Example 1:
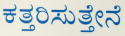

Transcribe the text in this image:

ಕತ್ತರಿಸುತ್ತೇನೆ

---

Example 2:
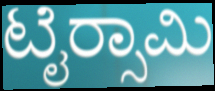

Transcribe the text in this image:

ಟೈರ‍್ಸಾಮಿ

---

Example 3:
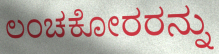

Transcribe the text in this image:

ಲಂಚಕೋರರನ್ನು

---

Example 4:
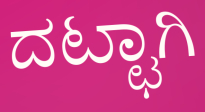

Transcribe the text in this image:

ದಟ್ಟಾಗಿ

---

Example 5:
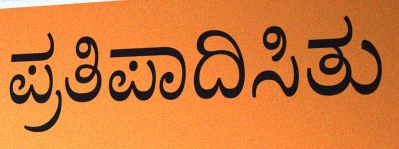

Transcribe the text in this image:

ಪ್ರತಿಪಾದಿಸಿತು